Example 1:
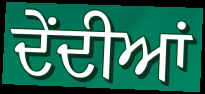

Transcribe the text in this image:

ਦੇਂਦੀਆਂ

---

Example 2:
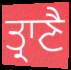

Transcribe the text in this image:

ਤ੍ਰਾਣੈ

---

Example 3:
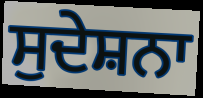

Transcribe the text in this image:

ਸੁਦੇਸ਼ਨਾ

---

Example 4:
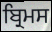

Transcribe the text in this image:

ਬ੍ਰਿਮਸ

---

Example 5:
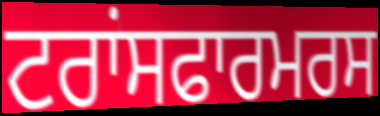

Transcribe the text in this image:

ਟਰਾਂਸਫਾਰਮਰਸ